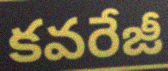
కవరేజీ